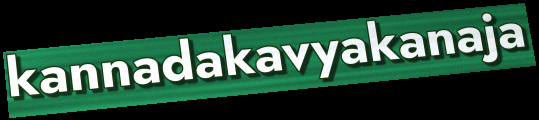
kannadakavyakanaja